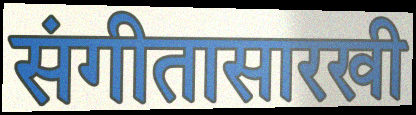
संगीतासारखी